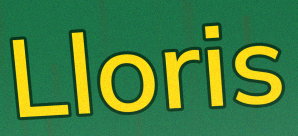
Lloris